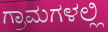
ಗ್ರಾಮಗಳಲ್ಲಿ